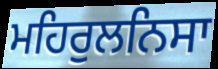
ਮਹਿਰੁਲਨਿਸਾ